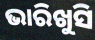
ଭାରିଖୁସି